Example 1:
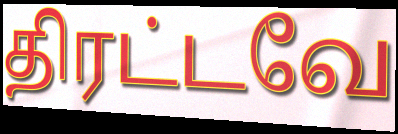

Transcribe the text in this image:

திரட்டவே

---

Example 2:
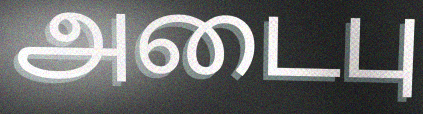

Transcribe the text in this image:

அடைபு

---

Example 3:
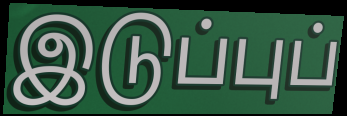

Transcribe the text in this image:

இடுப்புப்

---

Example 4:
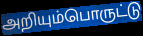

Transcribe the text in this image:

அறியும்பொருட்டு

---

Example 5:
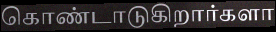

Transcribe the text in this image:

கொண்டாடுகிறார்களா